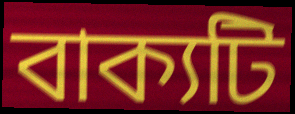
বাক্যটি